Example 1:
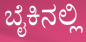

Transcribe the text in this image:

ಬೈಕಿನಲ್ಲಿ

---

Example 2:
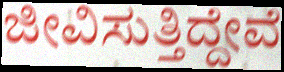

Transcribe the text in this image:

ಜೀವಿಸುತ್ತಿದ್ದೇವೆ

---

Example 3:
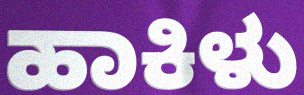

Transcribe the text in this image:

ಹಾಕಿಳು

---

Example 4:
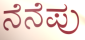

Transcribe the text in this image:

ನೆನೆಪು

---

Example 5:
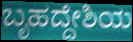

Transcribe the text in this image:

ಬೃಹದ್ದೇಶಿಯ